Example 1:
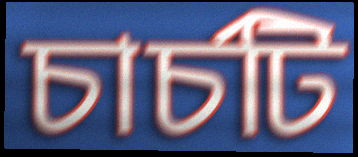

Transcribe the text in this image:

চার্চটি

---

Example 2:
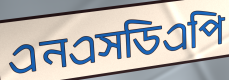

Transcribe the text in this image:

এনএসডিএপি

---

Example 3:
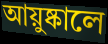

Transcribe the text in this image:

আয়ুষ্কালে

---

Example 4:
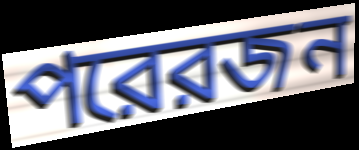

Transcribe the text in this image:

পরেরজন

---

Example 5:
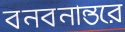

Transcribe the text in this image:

বনবনান্তরে